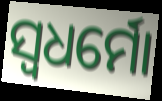
ସ୍ୱଧର୍ମୋ